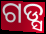
ଗଡ୍ସ